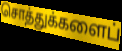
சொத்துக்களைப்